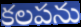
కలపను